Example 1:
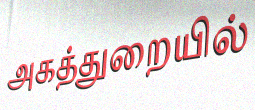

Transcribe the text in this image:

அகத்துறையில்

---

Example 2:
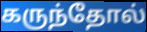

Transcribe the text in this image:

கருந்தோல்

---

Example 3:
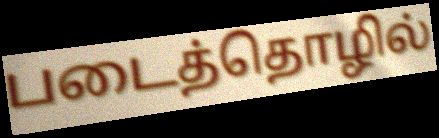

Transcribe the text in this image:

படைத்தொழில்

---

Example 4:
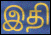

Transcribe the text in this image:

இதி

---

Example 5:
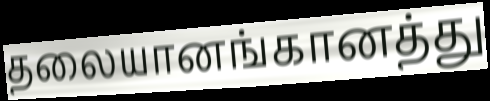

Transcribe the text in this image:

தலையானங்கானத்து